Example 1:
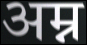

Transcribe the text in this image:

अम्न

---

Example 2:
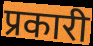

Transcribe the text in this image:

प्रकारी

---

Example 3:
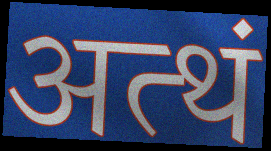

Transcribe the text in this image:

अत्थं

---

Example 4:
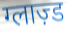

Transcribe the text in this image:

ग्लाज़्ड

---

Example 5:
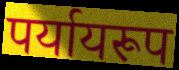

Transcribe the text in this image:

पर्यायरूप